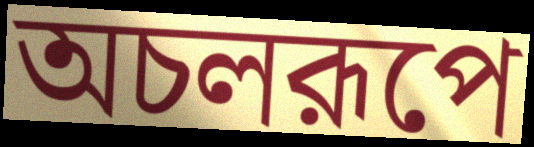
অচলরূপে